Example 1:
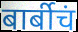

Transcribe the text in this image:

बार्बीचं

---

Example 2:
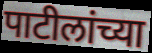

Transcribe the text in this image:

पाटीलांच्या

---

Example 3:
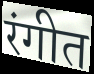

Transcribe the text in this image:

रंगीत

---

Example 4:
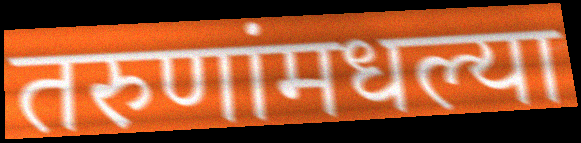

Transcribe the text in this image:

तरुणांमधल्या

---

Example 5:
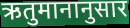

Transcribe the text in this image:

ऋतुमानानुसार